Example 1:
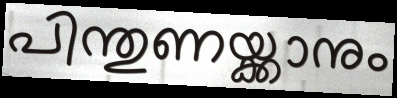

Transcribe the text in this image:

പിന്തുണയ്ക്കാനും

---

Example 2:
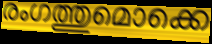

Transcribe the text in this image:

രംഗത്തുമൊക്കെ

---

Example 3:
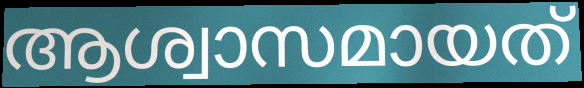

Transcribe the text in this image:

ആശ്വാസമായത്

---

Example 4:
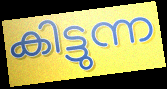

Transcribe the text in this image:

കിട്ടുന്ന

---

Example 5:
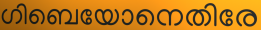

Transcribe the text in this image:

ഗിബെയോനെതിരേ